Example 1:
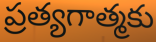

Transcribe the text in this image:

ప్రత్యగాత్మకు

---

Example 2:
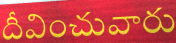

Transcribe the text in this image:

దీవించువారు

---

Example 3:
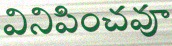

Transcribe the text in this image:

వినిపించవూ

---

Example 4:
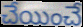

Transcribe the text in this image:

చేయించే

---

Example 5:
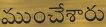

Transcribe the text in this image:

ముంచేశారు